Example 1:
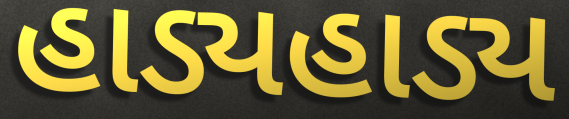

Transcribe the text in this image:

હાડ્યહાડ્ય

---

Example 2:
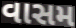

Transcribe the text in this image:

વાસમ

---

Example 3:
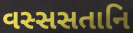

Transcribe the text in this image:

વસ્સસતાનિ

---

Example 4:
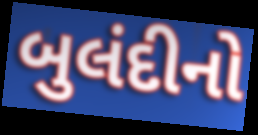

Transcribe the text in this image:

બુલંદીનો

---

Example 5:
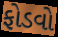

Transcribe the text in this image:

ફોડવો